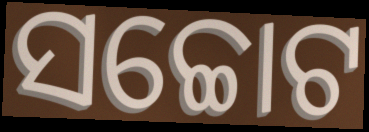
ସଚ୍ଚୋଟ